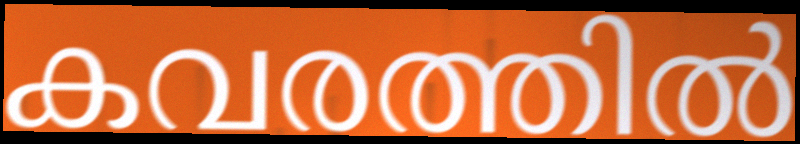
കവരത്തിൽ